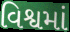
વિશ્વમાં